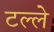
टल्ले